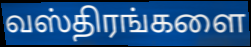
வஸ்திரங்களை